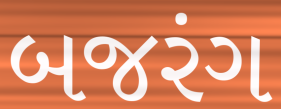
બજરંગ